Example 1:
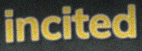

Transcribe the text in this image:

incited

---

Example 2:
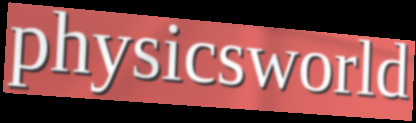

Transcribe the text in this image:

physicsworld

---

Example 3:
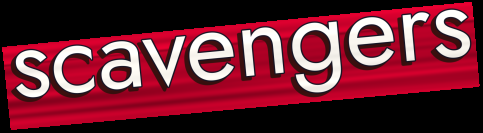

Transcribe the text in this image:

scavengers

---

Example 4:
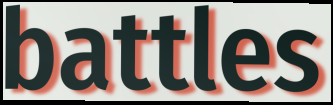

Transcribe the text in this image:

battles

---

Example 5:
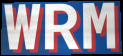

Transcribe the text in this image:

WRM